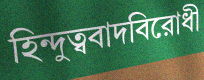
হিন্দুত্ববাদবিরোধী